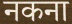
नकना